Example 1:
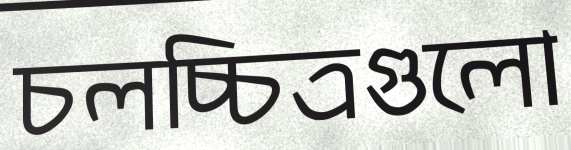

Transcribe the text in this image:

চলচ্চিত্রগুলো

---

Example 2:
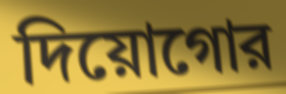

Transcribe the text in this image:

দিয়োগোর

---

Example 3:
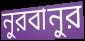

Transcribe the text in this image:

নুরবানুর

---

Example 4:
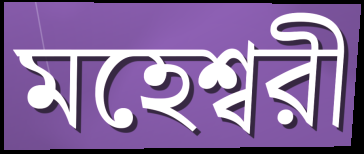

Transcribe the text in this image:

মহেশ্বরী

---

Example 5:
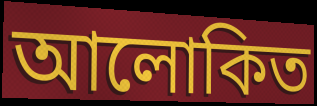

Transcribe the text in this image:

আলোকিত